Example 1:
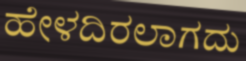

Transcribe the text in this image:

ಹೇಳದಿರಲಾಗದು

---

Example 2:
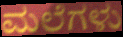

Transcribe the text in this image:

ಮಲೆಗಳು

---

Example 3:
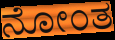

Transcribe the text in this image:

ನೋಂತ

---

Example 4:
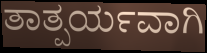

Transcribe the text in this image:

ತಾತ್ಪರ್ಯವಾಗಿ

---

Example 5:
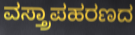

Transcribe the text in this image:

ವಸ್ತ್ರಾಪಹರಣದ